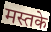
मस्तके